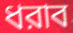
ধরাব